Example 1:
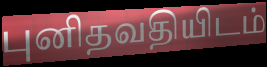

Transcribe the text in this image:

புனிதவதியிடம்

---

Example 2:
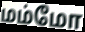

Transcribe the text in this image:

மம்மோ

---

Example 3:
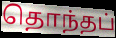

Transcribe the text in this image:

தொந்தப்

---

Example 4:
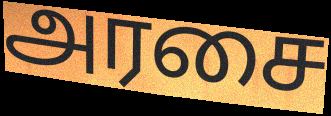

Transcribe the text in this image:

அரசை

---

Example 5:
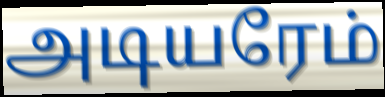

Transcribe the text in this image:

அடியரேம்